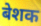
बेशक